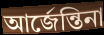
আর্জেন্তিনা